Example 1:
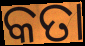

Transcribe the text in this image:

କତା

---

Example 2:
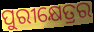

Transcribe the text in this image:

ପୁରୀକ୍ଷେତ୍ରର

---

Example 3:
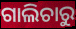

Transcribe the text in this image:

ଗାଲିଚାରୁ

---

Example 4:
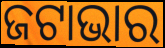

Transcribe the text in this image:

ଜଟାଭାର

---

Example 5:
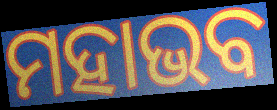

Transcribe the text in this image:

ମହାଭବ